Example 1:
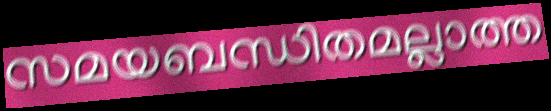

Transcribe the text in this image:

സമയബന്ധിതമല്ലാത്ത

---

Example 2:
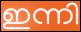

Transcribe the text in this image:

ഇന്നി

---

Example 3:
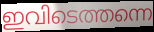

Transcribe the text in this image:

ഇവിടെത്തന്നെ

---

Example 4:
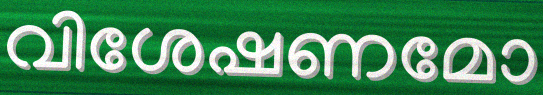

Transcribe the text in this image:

വിശേഷണമോ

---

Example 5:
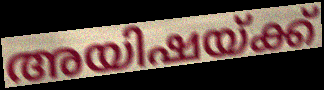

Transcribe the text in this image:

അയിഷയ്ക്ക്